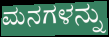
ಮನಗಳನ್ನು